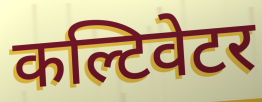
कल्टिवेटर